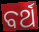
ବର୍ଥ